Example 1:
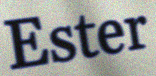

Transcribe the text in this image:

Ester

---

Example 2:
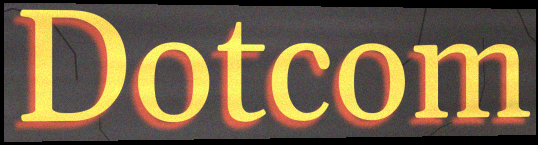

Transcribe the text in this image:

Dotcom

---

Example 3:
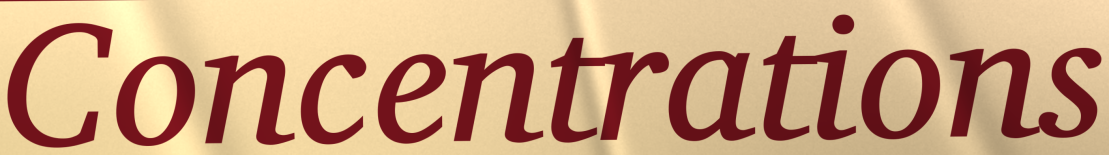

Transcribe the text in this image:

Concentrations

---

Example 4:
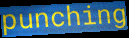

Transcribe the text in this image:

punching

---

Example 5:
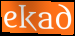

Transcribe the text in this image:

ekad